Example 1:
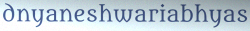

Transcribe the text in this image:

dnyaneshwariabhyas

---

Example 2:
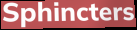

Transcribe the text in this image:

Sphincters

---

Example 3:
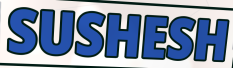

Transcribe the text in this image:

SUSHESH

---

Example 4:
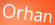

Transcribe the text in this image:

Orhan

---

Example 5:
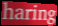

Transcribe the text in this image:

haring